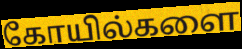
கோயில்களை